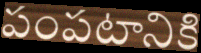
పంపటానికి